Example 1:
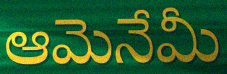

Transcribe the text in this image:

ఆమెనేమీ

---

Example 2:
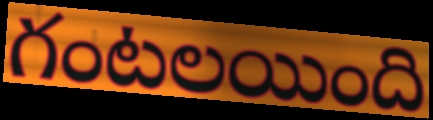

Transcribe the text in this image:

గంటలయింది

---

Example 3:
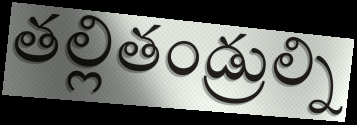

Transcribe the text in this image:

తల్లితండ్రుల్ని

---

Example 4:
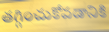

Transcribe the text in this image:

తగ్గించుకోవడానికి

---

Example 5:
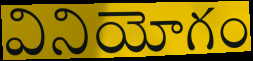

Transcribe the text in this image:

వినియోగం